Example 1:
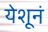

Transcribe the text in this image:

येशूनं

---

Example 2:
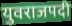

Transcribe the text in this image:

युवराजपदी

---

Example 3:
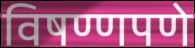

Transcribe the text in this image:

विषण्णपणे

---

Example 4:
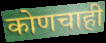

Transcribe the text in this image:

कोणचाही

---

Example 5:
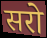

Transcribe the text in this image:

सरो